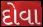
દોવા